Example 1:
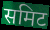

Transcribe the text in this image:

समिट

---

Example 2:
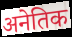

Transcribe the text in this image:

अनेतिक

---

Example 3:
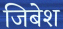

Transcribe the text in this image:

जिबेश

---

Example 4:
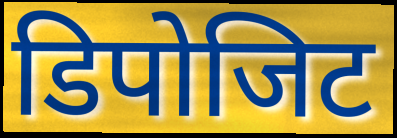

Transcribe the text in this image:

डिपोजिट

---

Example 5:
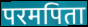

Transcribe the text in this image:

परमपिता